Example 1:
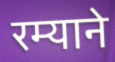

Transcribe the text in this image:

रम्याने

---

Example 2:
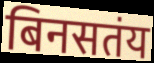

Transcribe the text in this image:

बिनसतंय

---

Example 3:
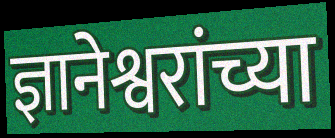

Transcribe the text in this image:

ज्ञानेश्वरांच्या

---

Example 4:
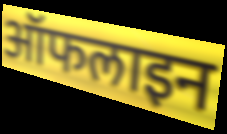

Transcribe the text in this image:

ऑफलाइन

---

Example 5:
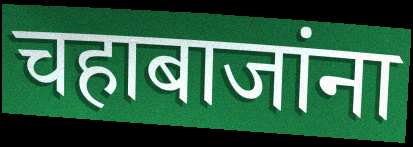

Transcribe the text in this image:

चहाबाजांना